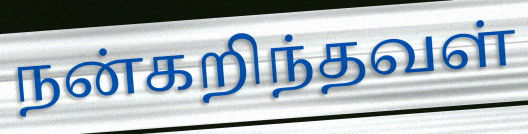
நன்கறிந்தவள்